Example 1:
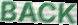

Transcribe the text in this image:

BACK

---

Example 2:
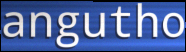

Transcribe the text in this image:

angutho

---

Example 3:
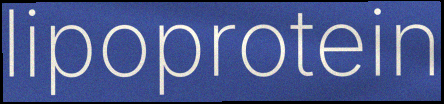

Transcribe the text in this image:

lipoprotein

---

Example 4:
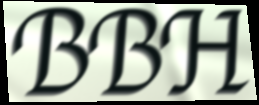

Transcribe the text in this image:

BBH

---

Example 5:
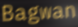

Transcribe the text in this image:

Bagwan